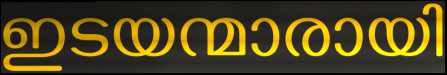
ഇടയന്മാരായി